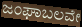
ಜಂಘಾಬಲವೇ